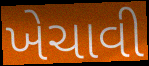
ખેચાવી